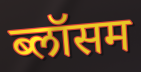
ब्लॉसम